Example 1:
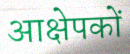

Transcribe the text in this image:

आक्षेपकों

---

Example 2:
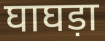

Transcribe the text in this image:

घाघड़ा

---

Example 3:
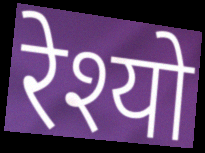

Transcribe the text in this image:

रेश्यो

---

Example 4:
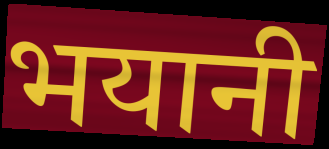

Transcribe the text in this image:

भयानी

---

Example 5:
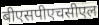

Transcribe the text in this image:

बीएसपीएचसीएल